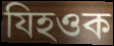
যিহওক